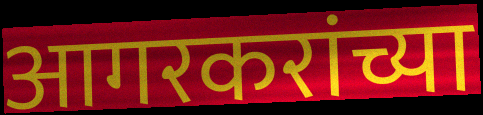
आगरकरांच्या